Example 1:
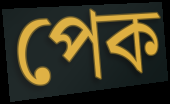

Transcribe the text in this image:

পেক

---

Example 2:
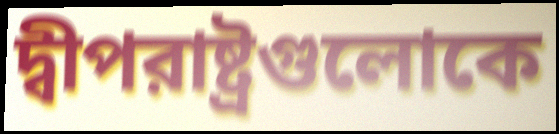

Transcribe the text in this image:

দ্বীপরাষ্ট্রগুলোকে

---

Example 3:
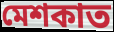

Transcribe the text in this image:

মেশকাত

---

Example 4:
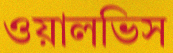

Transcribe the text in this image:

ওয়ালভিস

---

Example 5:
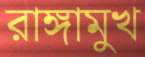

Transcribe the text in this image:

রাঙ্গামুখ